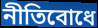
নীতিবোধে